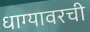
धाग्यावरची